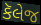
કૅલેજ